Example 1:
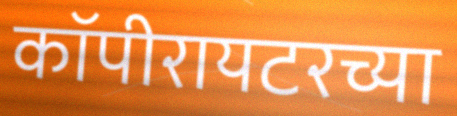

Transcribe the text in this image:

कॉपीरायटरच्या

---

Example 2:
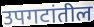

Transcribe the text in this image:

उपगटांतील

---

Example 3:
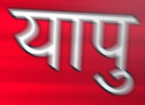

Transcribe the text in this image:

यापु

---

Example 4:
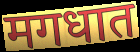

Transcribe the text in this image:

मगधात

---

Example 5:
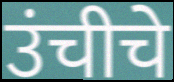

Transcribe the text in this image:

उंचीचे